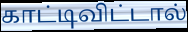
காட்டிவிட்டால்